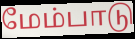
மேம்பாடு